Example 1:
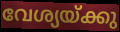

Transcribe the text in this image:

വേശ്യയ്ക്കു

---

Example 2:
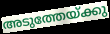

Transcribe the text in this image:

അടുത്തേയ്ക്കു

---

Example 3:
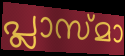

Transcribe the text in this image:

പ്ലാസ്മാ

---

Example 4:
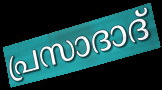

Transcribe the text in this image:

പ്രസാദാദ്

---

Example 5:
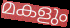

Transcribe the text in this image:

മകളും